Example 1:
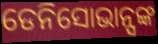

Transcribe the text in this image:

ଡେନିସୋଭାନ୍ସଙ୍କ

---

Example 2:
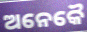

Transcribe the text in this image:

ଅନେକୈ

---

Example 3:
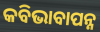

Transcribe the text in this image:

କବିଭାବାପନ୍ନ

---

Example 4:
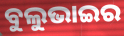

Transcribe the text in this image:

ବୁଲୁଭାଇର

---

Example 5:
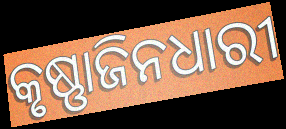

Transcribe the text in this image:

କୃଷ୍ଣାଜିନଧାରୀ